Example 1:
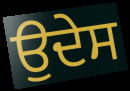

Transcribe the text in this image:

ਉਦੇਸ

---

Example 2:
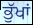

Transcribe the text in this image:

ਭੁੱਖਾਂ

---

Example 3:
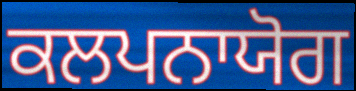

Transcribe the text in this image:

ਕਲਪਨਾਯੋਗ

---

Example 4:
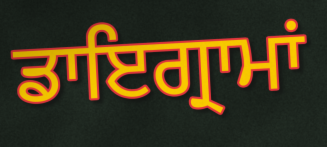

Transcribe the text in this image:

ਡਾਇਗ੍ਰਾਮਾਂ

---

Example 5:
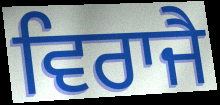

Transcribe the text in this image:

ਵਿਰਾਜੈ